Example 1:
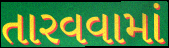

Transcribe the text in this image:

તારવવામાં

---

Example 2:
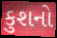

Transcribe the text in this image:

કુશનો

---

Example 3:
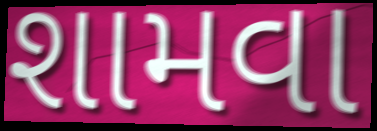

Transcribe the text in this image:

શામવા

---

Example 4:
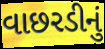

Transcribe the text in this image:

વાછરડીનું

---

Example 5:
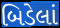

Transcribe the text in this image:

બિડેલાં